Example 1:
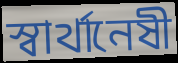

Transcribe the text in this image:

স্বার্থানেষী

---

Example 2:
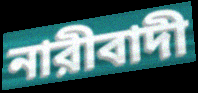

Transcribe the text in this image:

নারীবাদী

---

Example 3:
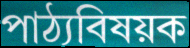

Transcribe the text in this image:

পাঠ্যবিষয়ক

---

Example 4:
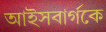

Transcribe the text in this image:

আইসবার্গকে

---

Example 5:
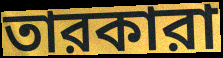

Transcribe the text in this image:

তারকারা